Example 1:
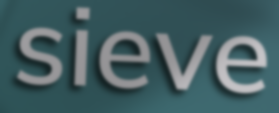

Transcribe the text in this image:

sieve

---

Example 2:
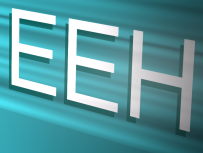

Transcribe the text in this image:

EEH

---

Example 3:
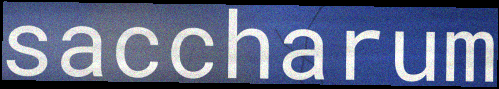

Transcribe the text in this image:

saccharum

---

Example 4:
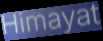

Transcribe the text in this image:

Himayat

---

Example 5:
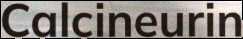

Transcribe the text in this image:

Calcineurin